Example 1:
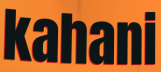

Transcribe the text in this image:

kahani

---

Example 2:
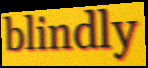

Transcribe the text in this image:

blindly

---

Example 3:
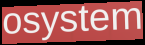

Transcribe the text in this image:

osystem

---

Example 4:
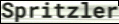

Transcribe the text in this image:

Spritzler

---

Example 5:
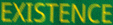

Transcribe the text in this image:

EXISTENCE